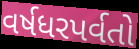
વર્ષધરપર્વતો